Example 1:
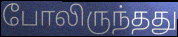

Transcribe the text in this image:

போலிருந்தது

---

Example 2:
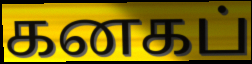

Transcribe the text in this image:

கனகப்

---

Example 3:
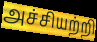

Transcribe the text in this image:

அச்சியற்றி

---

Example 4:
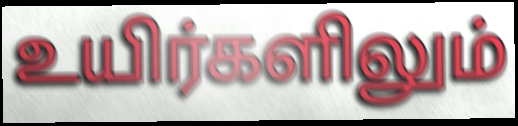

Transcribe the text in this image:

உயிர்களிலும்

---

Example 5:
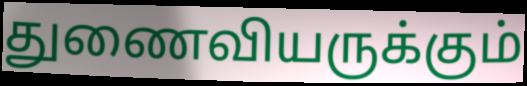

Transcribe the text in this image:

துணைவியருக்கும்